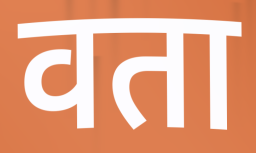
वता